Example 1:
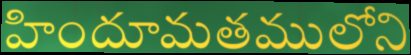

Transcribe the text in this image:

హిందూమతములోని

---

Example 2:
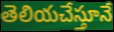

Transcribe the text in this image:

తెలియచేస్తూనే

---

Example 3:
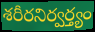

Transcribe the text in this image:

శరీరనిర్వర్త్యం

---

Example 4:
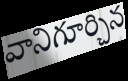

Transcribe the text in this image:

వానిగూర్చిన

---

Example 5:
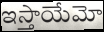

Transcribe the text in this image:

ఇస్తాయేమో